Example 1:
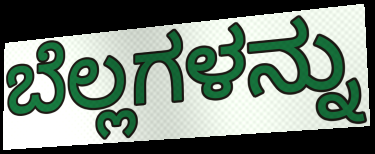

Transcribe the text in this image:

ಬೆಲ್ಲಗಳನ್ನು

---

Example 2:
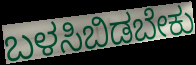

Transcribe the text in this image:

ಬಳಸಿಬಿಡಬೇಕು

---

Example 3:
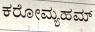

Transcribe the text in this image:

ಕರೋಮ್ಯಹಮ್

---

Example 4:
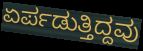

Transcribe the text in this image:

ಏರ್ಪಡುತ್ತಿದ್ದವು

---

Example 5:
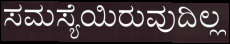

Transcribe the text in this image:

ಸಮಸ್ಯೆಯಿರುವುದಿಲ್ಲ